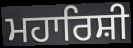
ਮਹਾਰਿਸ਼ੀ